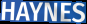
HAYNES